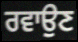
ਰਵਾਉਣ